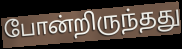
போன்றிருந்தது